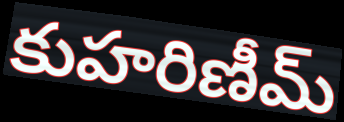
కుహరిణీమ్